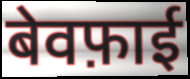
बेवफ़ाई